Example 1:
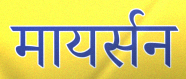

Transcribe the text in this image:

मायर्सन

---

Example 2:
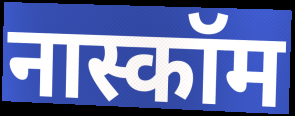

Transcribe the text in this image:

नास्कॉम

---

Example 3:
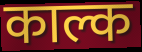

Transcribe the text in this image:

काल्क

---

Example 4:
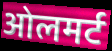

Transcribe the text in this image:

ओलमर्ट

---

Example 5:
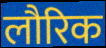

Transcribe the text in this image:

लौरिक